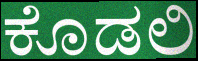
ಕೊಡಲಿ